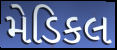
મેડિકલ